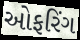
ઓફરિંગ